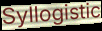
Syllogistic